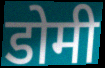
डोमी